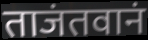
ताजंतवानं